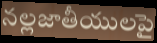
నల్లజాతీయులపై